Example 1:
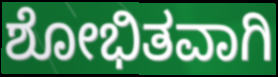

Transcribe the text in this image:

ಶೋಭಿತವಾಗಿ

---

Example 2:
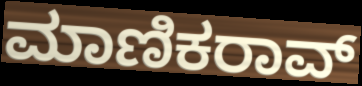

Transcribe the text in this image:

ಮಾಣಿಕರಾವ್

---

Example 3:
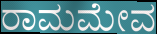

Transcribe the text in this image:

ರಾಮಮೇವ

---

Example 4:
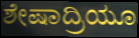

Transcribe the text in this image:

ಶೇಷಾದ್ರಿಯೂ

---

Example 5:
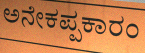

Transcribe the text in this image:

ಅನೇಕಪ್ಪಕಾರಂ